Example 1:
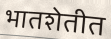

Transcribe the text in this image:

भातशेतीत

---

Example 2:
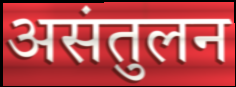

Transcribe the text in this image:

असंतुलन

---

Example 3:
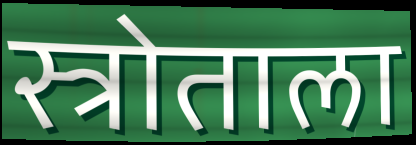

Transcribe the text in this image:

स्त्रोताला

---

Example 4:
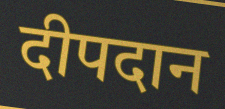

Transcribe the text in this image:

दीपदान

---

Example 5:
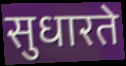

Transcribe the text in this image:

सुधारते